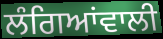
ਲੰਗਿਆਂਵਾਲੀ